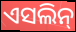
ଏସଲିନ୍